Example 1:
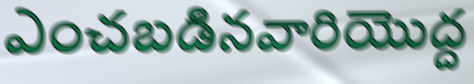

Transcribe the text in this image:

ఎంచబడినవారియొద్ద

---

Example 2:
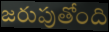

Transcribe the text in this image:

జరుపుతోంది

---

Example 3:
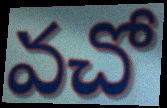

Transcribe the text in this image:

వచో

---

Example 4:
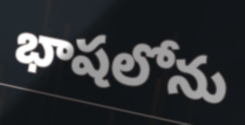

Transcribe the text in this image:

భాషలోను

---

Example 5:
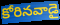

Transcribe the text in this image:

కోరినవాడై